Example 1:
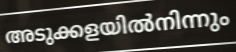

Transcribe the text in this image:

അടുക്കളയിൽനിന്നും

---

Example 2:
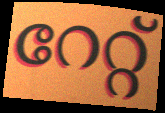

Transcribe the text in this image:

റേറ്റ്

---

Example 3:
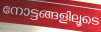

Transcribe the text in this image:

നോട്ടങ്ങളിലൂടെ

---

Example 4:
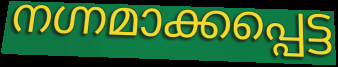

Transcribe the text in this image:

നഗ്നമാക്കപ്പെട്ട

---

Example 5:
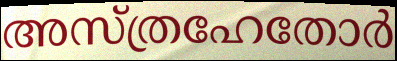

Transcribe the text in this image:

അസ്ത്രഹേതോർ